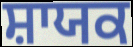
ਸ਼ਾਯਕ